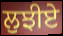
ਲੁਝੀਏ